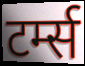
टर्म्स